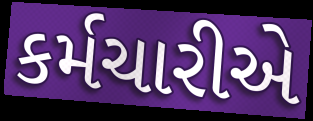
કર્મચારીએ